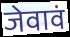
जेवावं